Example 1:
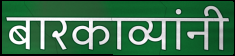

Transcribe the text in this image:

बारकाव्यांनी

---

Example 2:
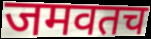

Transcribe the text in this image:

जमवतच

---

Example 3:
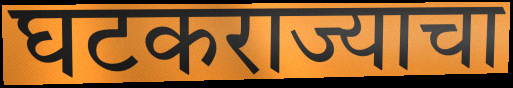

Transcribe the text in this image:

घटकराज्याचा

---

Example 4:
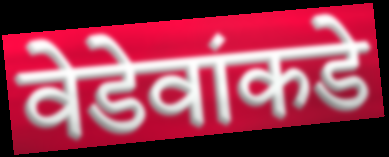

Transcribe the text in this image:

वेडेवांकडे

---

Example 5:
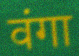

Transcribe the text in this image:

वंगा